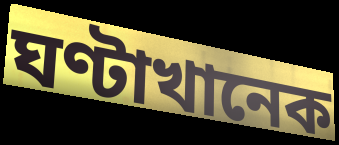
ঘণ্টাখানেক